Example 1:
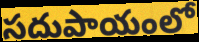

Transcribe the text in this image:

సదుపాయంలో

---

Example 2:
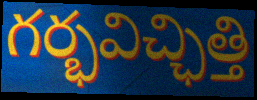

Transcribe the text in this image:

గర్భవిచ్ఛిత్తి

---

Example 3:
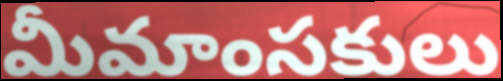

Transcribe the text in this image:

మీమాంసకులు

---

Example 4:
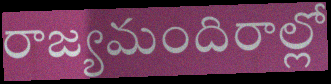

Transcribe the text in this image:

రాజ్యమందిరాల్లో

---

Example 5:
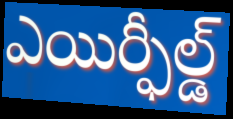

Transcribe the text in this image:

ఎయిర్ఫీల్డ్